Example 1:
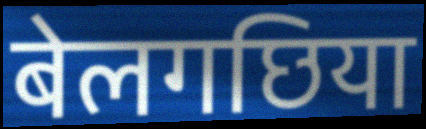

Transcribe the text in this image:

बेलगछिया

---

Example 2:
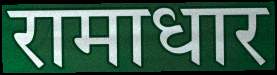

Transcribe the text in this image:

रामाधार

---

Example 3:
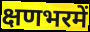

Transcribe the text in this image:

क्षणभरमें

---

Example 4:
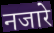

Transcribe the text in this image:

नजारे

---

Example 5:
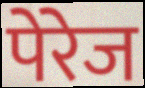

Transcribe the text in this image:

पेरेज